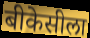
बीकेसीला